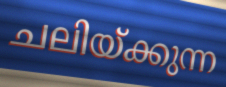
ചലിയ്ക്കുന്ന